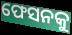
ଫେସନକୁ